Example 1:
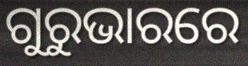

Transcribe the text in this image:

ଗୁରୁଭାରରେ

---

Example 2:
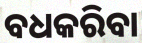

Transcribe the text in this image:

ବଧକରିବା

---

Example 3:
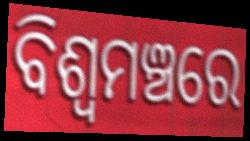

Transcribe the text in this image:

ବିଶ୍ୱମଞ୍ଚରେ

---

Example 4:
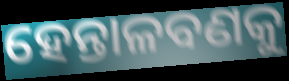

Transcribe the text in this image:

ହେନ୍ତାଳବଣକୁ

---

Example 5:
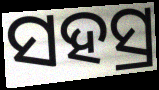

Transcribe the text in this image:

ସହସ୍ର